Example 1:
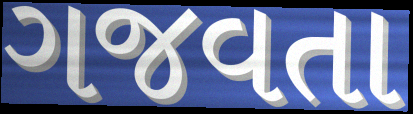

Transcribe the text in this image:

ગજવતા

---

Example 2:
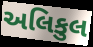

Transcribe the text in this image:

અલિકુલ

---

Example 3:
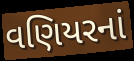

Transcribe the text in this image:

વણિયરનાં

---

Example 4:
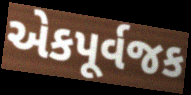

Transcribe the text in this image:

એકપૂર્વજક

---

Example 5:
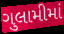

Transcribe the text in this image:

ગુલામીમાં